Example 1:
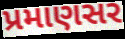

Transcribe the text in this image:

પ્રમાણસર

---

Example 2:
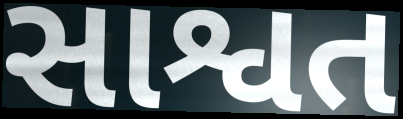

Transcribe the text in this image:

સાશ્વત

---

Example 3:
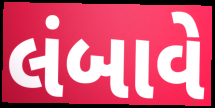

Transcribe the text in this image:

લંબાવે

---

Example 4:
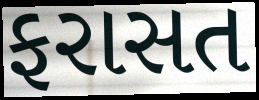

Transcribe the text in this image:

ફરાસત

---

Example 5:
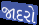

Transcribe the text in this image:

જાદરો